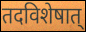
तदविशेषात्